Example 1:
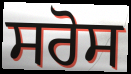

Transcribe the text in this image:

ਸਰੋਸ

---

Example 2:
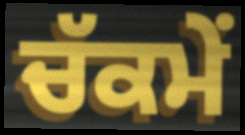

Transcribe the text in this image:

ਚੱਕਮੇਂ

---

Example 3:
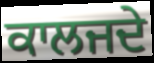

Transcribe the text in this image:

ਕਾਲਜਦੇ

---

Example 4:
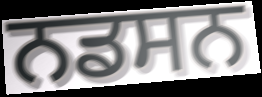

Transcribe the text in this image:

ਨਡਸਨ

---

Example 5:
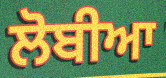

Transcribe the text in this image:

ਲੋਬੀਆ